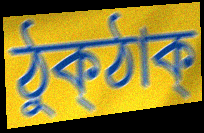
ঠুক্ঠাক্